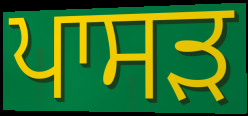
ਪਾਸੜ